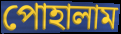
পোহালাম